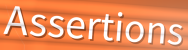
Assertions